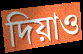
দিয়াও